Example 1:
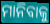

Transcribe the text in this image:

ମାନିବାକୁ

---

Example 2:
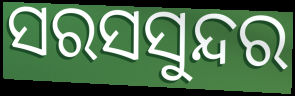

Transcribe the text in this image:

ସରସସୁନ୍ଦର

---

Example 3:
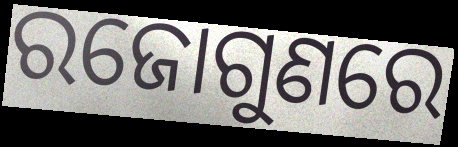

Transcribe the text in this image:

ରଜୋଗୁଣରେ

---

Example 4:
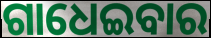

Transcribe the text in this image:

ଗାଧେଇବାର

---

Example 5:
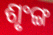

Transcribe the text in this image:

ଶୃଂଙ୍ଗ